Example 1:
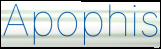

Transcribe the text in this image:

Apophis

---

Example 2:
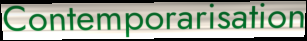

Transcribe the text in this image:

Contemporarisation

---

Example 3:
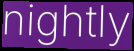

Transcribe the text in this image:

nightly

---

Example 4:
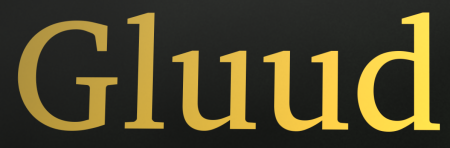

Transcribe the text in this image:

Gluud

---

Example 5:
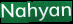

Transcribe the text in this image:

Nahyan